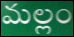
మల్లం